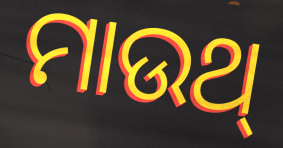
ମାଉଥ୍